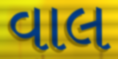
વાલ